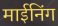
माईनिंग